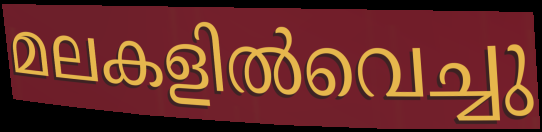
മലകളിൽവെച്ചു